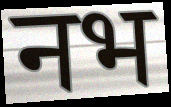
नभ